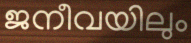
ജനീവയിലും